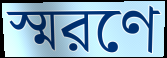
স্মরণে